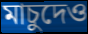
মাচুদেও